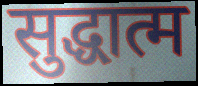
सुद्धात्म